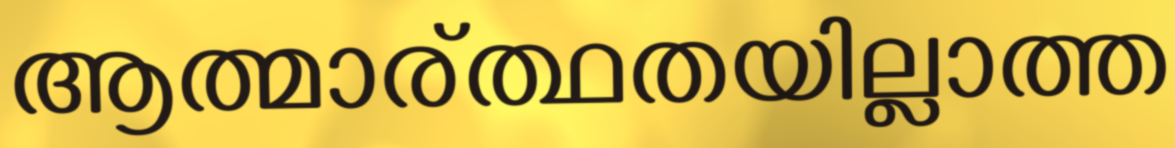
ആത്മാര്ത്ഥതയില്ലാത്ത